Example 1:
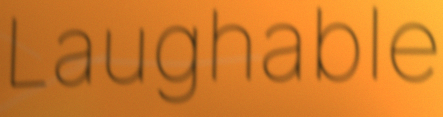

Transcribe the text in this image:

Laughable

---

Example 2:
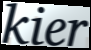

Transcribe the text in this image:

kier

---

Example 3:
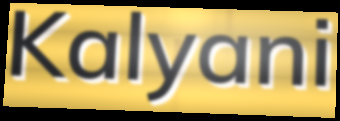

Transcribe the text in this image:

Kalyani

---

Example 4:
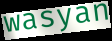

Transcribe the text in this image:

wasyan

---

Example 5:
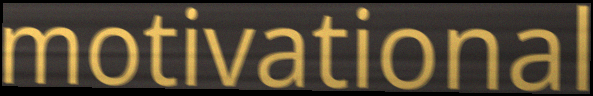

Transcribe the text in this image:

motivational